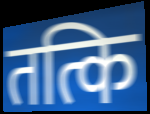
तत्कि